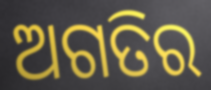
ଅଗତିର